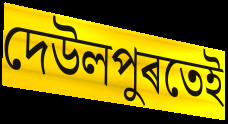
দেউলপুৰতেই